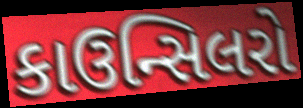
કાઉન્સિલરો